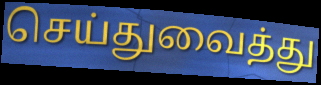
செய்துவைத்து